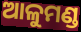
ଆଳୁମଣ୍ଡ